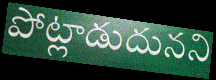
పోట్లాడుదునని